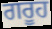
ਗਰੂਹ